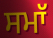
ਸਮਾੱ